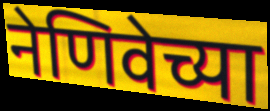
नेणिवेच्या